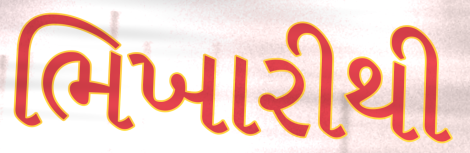
ભિખારીથી